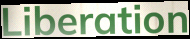
Liberation